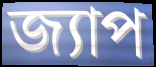
জ্যাপ